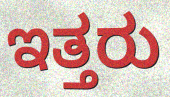
ಇತ್ತರು